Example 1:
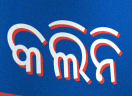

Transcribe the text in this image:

କଲିନି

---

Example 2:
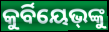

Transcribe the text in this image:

କୁର୍ବିୟେଭ୍‌ଙ୍କୁ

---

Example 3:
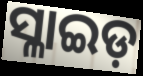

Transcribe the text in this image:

ସ୍ଳାଇଡ଼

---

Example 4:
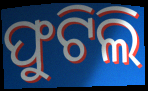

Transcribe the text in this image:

ଫୁଟିଲି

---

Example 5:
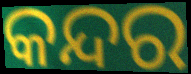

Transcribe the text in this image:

କନ୍ଦର